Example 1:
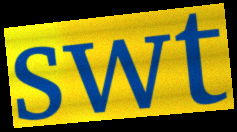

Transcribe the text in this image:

swt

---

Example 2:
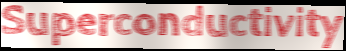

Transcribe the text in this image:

Superconductivity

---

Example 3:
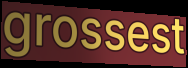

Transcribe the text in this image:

grossest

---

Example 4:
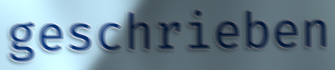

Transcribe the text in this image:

geschrieben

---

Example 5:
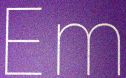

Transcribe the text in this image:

Em